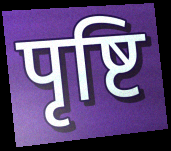
पृष्टि